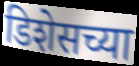
डिशेसच्या